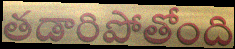
తడారిపోతోంది